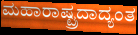
ಮಹಾರಾಷ್ಟ್ರದಾದ್ಯಂತ